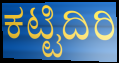
ಕಟ್ಟಿದಿರಿ